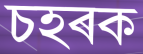
চহৰক